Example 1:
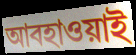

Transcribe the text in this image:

আবহাওয়াই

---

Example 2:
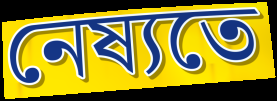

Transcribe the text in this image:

নেষ্যতে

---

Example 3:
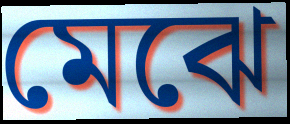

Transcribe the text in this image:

মেঝে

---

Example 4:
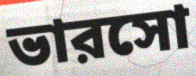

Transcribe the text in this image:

ভারসো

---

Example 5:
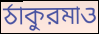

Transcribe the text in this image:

ঠাকুরমাও